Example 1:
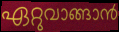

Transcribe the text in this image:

ഏറ്റുവാങ്ങാൻ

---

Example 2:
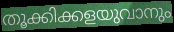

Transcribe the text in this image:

തൂക്കിക്കളയുവാനും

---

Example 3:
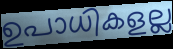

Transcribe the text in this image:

ഉപാധികളല്ല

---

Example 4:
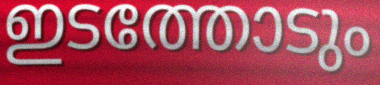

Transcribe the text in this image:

ഇടത്തോടും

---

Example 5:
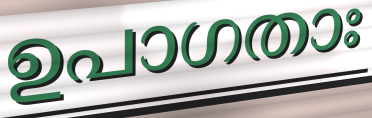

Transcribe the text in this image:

ഉപാഗതാഃ